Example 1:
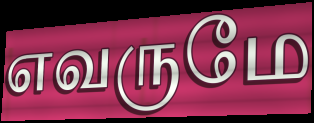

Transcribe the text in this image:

எவருமே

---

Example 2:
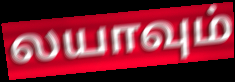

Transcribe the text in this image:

லயாவும்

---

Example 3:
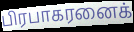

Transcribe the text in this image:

பிரபாகரனைக்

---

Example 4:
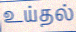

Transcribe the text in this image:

உய்தல்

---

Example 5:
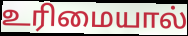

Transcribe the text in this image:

உரிமையால்